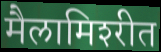
मैलामिश्रीत